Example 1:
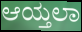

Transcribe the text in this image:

ಆಯ್ತಲಾ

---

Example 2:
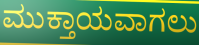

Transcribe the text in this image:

ಮುಕ್ತಾಯವಾಗಲು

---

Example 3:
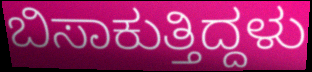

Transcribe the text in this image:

ಬಿಸಾಕುತ್ತಿದ್ದಳು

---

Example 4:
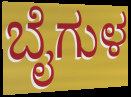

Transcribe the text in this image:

ಬೈಗುಳ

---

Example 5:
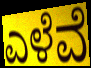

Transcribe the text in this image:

ಎಳೆವೆ